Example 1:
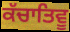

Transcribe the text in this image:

ਕੱਚਾਤਿਵੂ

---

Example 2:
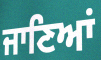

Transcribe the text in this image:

ਜਾਣਿਆਂ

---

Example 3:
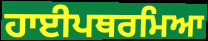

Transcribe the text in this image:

ਹਾਈਪਥਰਮਿਆ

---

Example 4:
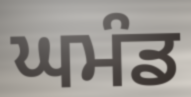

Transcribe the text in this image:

ਘਮੰਡ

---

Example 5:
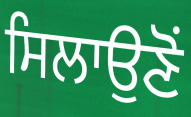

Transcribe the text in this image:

ਸਿਲਾਉਣੋਂ